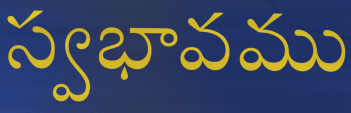
స్వభావము